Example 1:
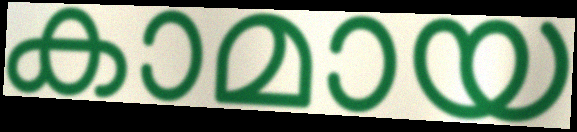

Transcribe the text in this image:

കാമായ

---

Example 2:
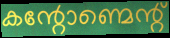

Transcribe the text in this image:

കന്റോണ്മെന്റ്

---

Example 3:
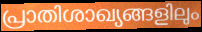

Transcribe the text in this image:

പ്രാതിശാഖ്യങ്ങളിലും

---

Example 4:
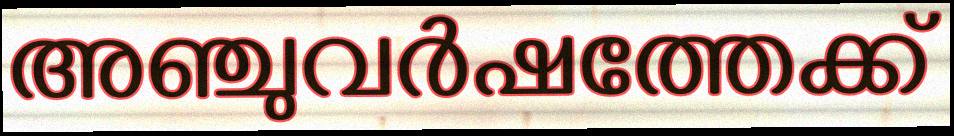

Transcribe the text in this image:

അഞ്ചുവർഷത്തേക്ക്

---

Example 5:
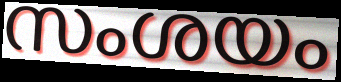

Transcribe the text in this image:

സംശയം